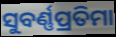
ସୁବର୍ଣ୍ଣପ୍ରତିମା